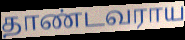
தாண்டவராய